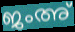
ജംഅ്